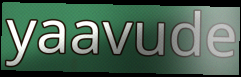
yaavude